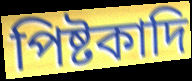
পিষ্টকাদি